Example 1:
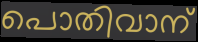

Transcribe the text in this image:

പൊതിവാന്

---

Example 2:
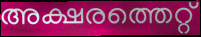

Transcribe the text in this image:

അക്ഷരത്തെറ്റ്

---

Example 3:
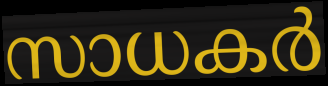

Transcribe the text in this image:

സാധകർ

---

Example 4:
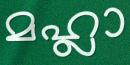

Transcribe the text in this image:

മഹ്ലാ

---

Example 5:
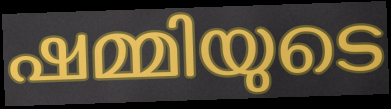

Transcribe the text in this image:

ഷമ്മിയുടെ